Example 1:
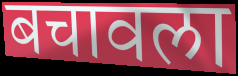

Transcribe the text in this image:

बचावला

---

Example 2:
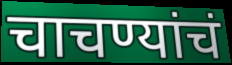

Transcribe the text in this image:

चाचण्यांचं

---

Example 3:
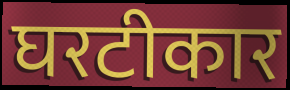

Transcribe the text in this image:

घरटीकार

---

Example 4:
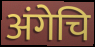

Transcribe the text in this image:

अंगेचि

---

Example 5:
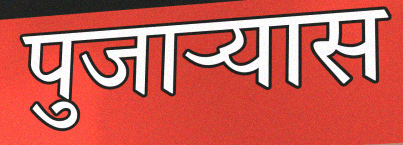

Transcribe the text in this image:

पुजाऱ्यास